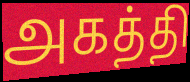
அகத்தி